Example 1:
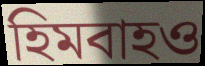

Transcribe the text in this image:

হিমবাহও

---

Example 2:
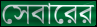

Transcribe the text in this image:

সেবারের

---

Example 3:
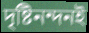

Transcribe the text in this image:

দৃষ্টিনন্দনই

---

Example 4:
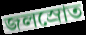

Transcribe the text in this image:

জলস্রোত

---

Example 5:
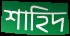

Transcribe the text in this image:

শাহিদ